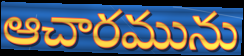
ఆచారమును